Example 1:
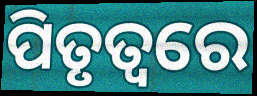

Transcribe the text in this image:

ପିତୃତ୍ୱରେ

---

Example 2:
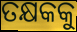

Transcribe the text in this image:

ତକ୍ଷକକୁ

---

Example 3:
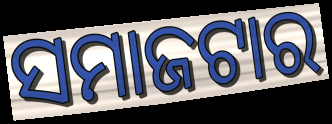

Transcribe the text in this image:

ସମାଜଟାର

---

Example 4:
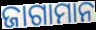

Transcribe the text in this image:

ଜାଗାମାନ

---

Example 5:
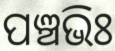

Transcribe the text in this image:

ପଞ୍ଚଭିଃ